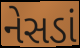
નેસડાં